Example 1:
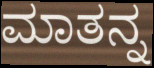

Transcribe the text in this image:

ಮಾತನ್ನ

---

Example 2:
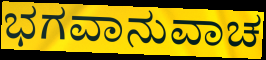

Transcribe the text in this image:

ಭಗವಾನುವಾಚ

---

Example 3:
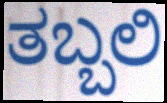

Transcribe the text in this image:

ತಬ್ಬಲಿ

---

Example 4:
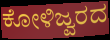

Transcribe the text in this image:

ಕೋಳಿಜ್ವರದ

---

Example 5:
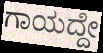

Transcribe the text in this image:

ಗಾಯದ್ದೇ